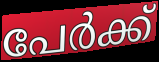
പേർക്ക്